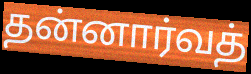
தன்னார்வத்